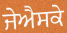
ਜੇਐਸਕੇ